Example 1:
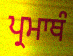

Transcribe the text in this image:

ਪ੍ਰਮਾਥੰ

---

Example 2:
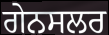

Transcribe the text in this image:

ਗੇਨਸਲਰ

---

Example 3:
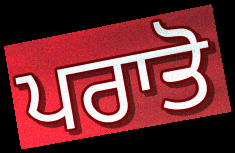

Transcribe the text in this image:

ਪਰਾਤੋ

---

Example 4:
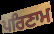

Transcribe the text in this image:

ਪਰਿਣਾਮ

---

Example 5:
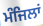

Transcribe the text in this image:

ਮੰਜਿਲਾਂ